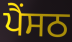
ਪੈਂਸਠ